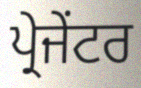
ਪ੍ਰੇਜੇਂਟਰ